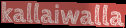
kallaiwalla